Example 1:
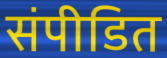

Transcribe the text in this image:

संपीडित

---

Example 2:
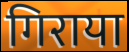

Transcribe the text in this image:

गिराया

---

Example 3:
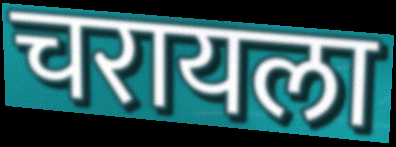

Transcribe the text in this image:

चरायला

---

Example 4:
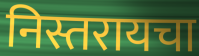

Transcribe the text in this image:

निस्तरायचा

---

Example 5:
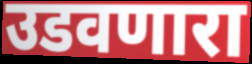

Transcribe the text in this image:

उडवणारा